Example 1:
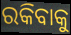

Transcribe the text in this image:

ରକିବାକୁ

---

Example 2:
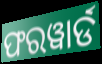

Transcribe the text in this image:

ଫରୱାର୍ଡ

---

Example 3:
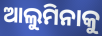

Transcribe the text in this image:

ଆଲୁମିନାକୁ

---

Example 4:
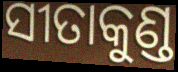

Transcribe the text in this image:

ସୀତାକୁଣ୍ଡ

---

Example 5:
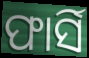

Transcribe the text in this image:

ଫାର୍ସି